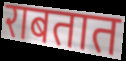
राबतात